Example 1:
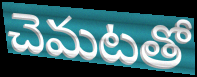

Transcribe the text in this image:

చెమటతో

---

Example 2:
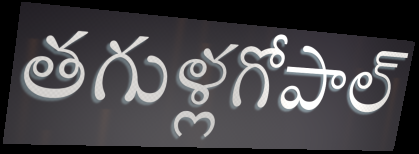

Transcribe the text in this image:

తగుళ్లగోపాల్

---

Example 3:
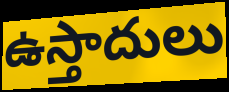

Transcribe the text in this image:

ఉస్తాదులు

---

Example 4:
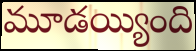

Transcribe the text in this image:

మూడయ్యింది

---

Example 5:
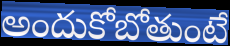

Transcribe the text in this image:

అందుకోబోతుంటే